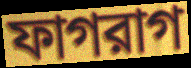
ফাগরাগ